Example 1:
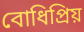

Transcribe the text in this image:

বোধিপ্রিয়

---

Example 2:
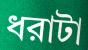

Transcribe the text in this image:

ধরাটা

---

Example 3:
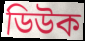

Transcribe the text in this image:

ডিউক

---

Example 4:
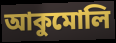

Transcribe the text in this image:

আকুমোলি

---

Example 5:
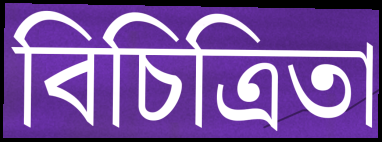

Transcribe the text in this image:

বিচিত্রিতা